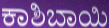
ಕಾಶಿಬಾಯಿ